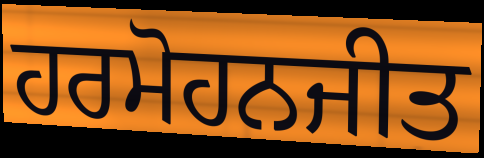
ਹਰਮੋਹਨਜੀਤ